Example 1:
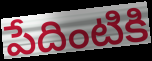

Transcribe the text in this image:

పేదింటికి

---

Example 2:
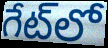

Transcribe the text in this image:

గేట్‌లో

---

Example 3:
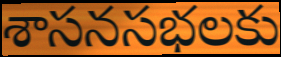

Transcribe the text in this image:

శాసనసభలకు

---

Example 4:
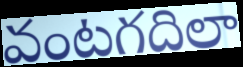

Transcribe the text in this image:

వంటగదిలా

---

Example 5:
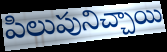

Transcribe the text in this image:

పిలుపునిచ్చాయి